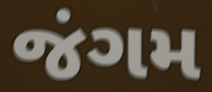
જંગમ